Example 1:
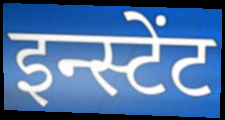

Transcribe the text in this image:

इन्स्टेंट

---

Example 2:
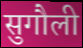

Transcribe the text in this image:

सुगौली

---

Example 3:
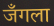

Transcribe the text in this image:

जँगला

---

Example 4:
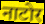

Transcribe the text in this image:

नाटोर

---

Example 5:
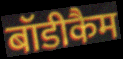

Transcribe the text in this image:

बॉडीकैम